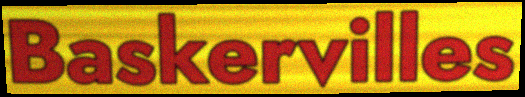
Baskervilles